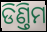
ଡିଣ୍ତିମ